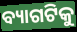
ବ୍ୟାଗଟିକୁ